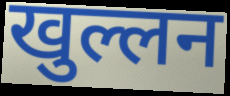
खुल्लन